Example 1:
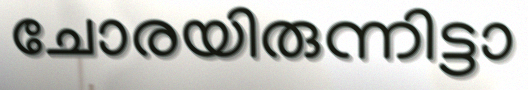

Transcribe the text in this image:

ചോരയിരുന്നിട്ടാ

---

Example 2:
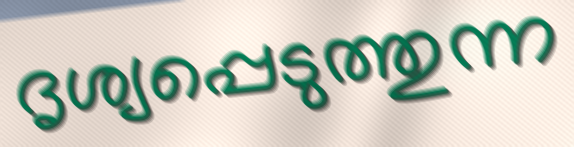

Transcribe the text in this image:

ദൃശ്യപ്പെടുത്തുന്ന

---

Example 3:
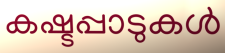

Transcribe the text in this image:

കഷ്ടപ്പാടുകൾ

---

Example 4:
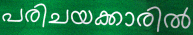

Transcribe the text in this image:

പരിചയക്കാരിൽ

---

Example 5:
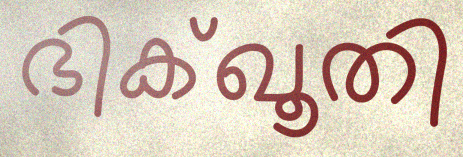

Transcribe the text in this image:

ഭിക്ഖൂതി